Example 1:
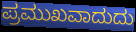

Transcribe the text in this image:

ಪ್ರಮುಖವಾದುದು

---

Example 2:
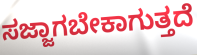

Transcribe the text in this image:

ಸಜ್ಜಾಗಬೇಕಾಗುತ್ತದೆ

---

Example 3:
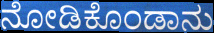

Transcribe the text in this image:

ನೋಡಿಕೊಂಡಾನು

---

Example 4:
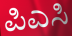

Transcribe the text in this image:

ಪಿಎಸಿ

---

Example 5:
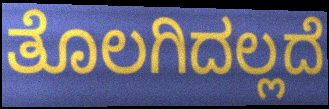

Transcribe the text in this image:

ತೊಲಗಿದಲ್ಲದೆ